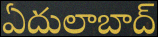
ఏదులాబాద్